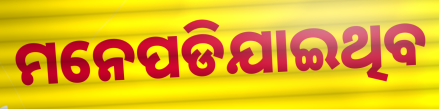
ମନେପଡିଯାଇଥିବ